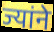
ज्यांने